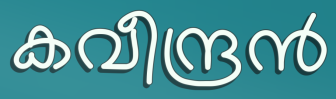
കവീന്ദ്രൻ